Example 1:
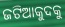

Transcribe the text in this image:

ଜଟିଆକୁଦକୁ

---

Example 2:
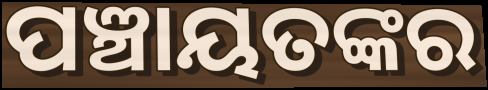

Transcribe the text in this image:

ପଞ୍ଚାୟତଙ୍କର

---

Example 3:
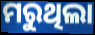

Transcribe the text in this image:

ମରୁଥିଲା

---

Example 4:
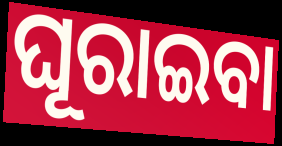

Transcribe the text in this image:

ଘୂରାଇବା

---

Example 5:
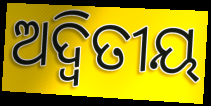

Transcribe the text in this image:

ଅଦ୍ବିତୀୟ